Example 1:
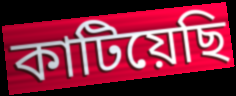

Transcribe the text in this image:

কাটিয়েছি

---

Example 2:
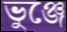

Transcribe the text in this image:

ভুঞ্জে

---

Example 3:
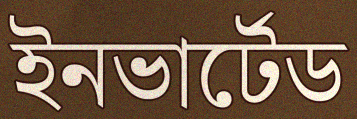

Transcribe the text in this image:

ইনভার্টেড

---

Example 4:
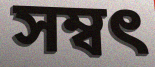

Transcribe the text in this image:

সম্বৎ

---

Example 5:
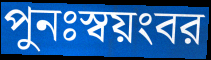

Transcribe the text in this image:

পুনঃস্বয়ংবর